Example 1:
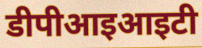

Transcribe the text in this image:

डीपीआइआइटी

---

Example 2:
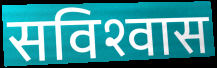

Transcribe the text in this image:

सविश्वास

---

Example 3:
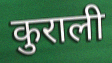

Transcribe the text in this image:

कुराली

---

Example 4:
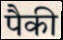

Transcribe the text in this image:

पैकी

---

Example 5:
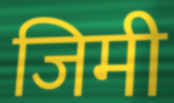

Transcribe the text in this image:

जिमी